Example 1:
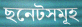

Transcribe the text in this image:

ছনেটসমূহ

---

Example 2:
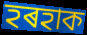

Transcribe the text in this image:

হৰহাক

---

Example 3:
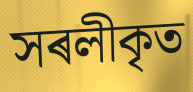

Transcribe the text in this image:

সৰলীকৃত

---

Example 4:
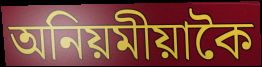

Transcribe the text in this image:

অনিয়মীয়াকৈ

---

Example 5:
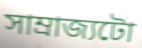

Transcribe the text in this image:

সাম্ৰাজ্যটো